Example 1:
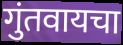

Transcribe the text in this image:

गुंतवायचा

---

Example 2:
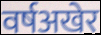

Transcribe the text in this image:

वर्षअखेर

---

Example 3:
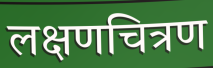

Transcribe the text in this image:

लक्षणचित्रण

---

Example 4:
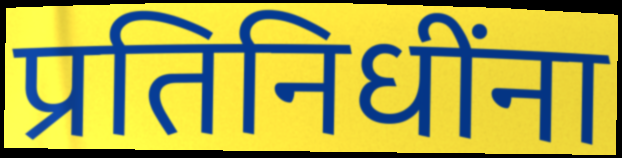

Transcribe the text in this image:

प्रतिनिधींना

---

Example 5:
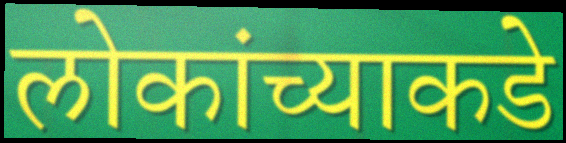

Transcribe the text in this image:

लोकांच्याकडे